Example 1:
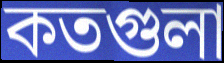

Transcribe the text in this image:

কতগুলা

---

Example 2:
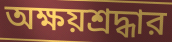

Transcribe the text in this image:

অক্ষয়শ্রদ্ধার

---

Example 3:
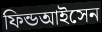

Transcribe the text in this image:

ফিন্ডআইসেন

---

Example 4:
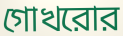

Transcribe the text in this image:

গোখরোর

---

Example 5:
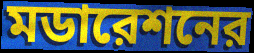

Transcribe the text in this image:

মডারেশনের